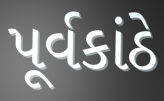
પૂર્વકાંઠે